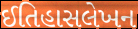
ઈતિહાસલેખન